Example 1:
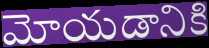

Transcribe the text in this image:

మోయడానికి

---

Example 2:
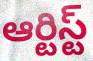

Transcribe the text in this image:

ఆర్టిస్ట్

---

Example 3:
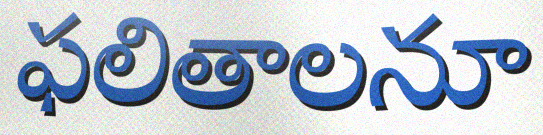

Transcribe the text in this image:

ఫలితాలనూ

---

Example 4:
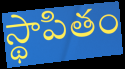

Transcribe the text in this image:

స్థాపితం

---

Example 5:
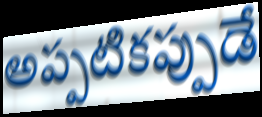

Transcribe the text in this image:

అప్పటికప్పుడే